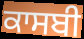
ਕਾਸਬੀ